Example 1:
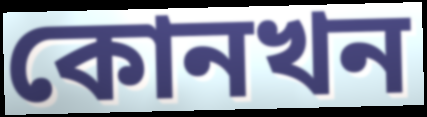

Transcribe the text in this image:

কোনখন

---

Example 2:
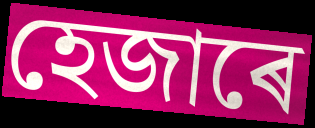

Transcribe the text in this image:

হেজাৰে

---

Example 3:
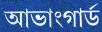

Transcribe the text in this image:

আভাংগাৰ্ড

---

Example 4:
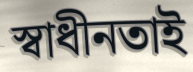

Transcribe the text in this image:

স্বাধীনতাই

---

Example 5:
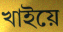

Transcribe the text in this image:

খাইয়ে